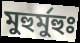
মুহুর্মুহুঃ